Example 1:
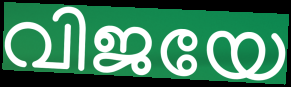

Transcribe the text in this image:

വിജയേ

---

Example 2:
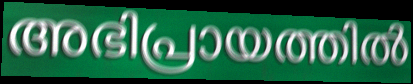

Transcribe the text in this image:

അഭിപ്രായത്തിൽ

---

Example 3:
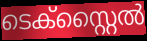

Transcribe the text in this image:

ടെക്സ്റ്റൈൽ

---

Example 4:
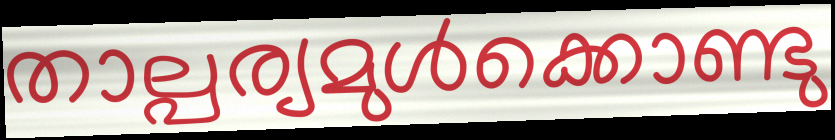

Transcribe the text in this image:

താല്പര്യമുൾക്കൊണ്ടു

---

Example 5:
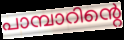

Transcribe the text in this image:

പാമ്പാറിന്റെ